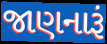
જાણનારૂં